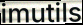
imutils